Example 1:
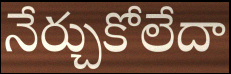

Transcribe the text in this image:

నేర్చుకోలేదా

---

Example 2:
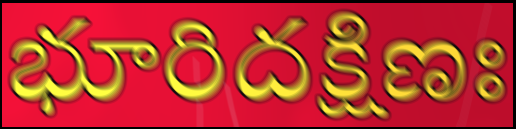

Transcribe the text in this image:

భూరిదక్షిణః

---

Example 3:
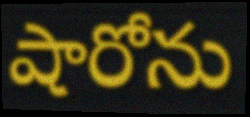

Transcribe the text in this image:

షారోను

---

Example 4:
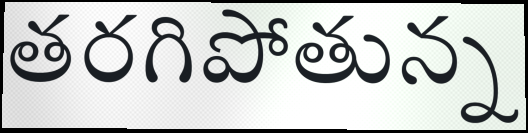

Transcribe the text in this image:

తరగిపోతున్న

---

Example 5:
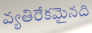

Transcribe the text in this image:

వ్యతిరేకమైనది